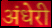
अंधेरी